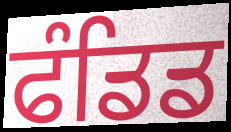
ਫੰਡਿਡ